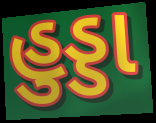
હુડ્ડા